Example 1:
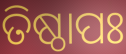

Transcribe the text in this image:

ତିଷ୍ଠାପଃ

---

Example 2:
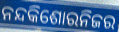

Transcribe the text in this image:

ନନ୍ଦକିଶୋରନିଜର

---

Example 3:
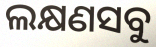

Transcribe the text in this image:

ଲକ୍ଷଣସବୁ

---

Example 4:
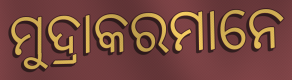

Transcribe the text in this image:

ମୁଦ୍ରାକରମାନେ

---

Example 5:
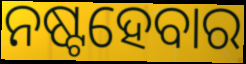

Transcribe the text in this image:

ନଷ୍ଟହେବାର